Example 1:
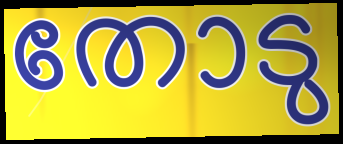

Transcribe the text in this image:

തോടു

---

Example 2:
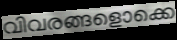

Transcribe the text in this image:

വിവരങ്ങളൊക്കെ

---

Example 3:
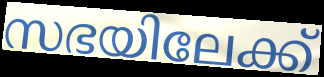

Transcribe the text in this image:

സഭയിലേക്ക്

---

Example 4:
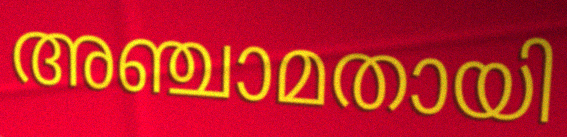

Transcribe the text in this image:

അഞ്ചാമതായി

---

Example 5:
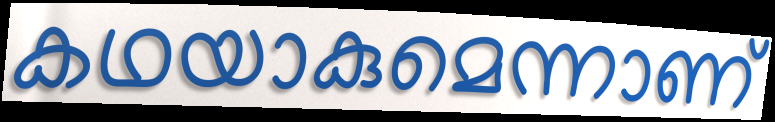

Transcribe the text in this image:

കഥയാകുമെന്നാണ്